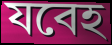
যবেহ